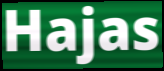
Hajas